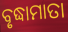
ବୃଦ୍ଧାମାତା